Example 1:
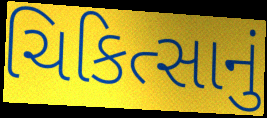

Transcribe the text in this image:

ચિકિત્સાનું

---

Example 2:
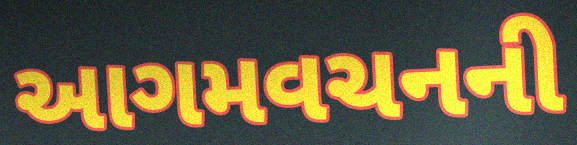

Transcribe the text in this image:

આગમવચનની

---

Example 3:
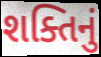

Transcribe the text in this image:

શક્તિનું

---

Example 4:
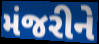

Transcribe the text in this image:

મંજરીને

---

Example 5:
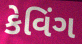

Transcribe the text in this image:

કેવિંગ